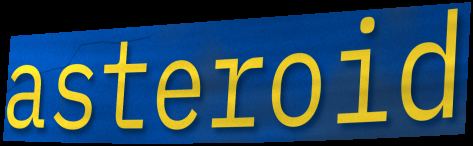
asteroid